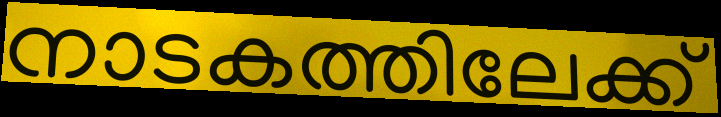
നാടകത്തിലേക്ക്